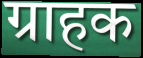
ग्राहक